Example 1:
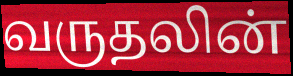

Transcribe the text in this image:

வருதலின்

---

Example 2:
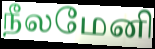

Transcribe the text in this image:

நீலமேனி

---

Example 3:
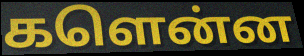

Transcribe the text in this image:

களென்ன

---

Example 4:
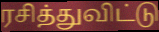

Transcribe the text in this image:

ரசித்துவிட்டு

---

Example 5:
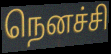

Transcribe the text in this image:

நெனச்சி